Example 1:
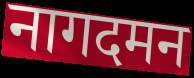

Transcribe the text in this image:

नागदमन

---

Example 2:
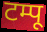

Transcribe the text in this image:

टम्पू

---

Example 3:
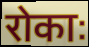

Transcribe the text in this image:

रोकाः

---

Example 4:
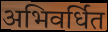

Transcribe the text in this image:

अभिवर्धित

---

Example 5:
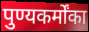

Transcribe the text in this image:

पुण्यकर्मोंका